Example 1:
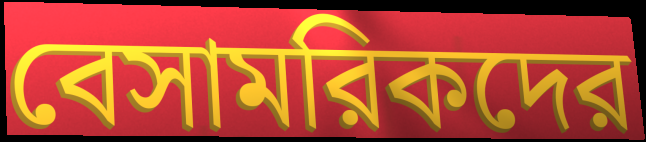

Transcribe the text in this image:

বেসামরিকদের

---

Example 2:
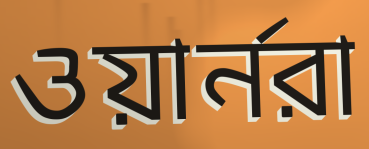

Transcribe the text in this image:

ওয়ার্নরা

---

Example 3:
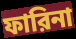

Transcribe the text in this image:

ফারিনা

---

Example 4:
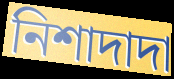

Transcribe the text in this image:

নিশাদাদা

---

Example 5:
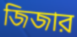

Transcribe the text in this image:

জিজার